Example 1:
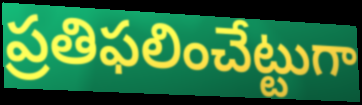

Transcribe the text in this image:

ప్రతిఫలించేట్టుగా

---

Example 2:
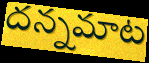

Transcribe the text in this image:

దన్నమాట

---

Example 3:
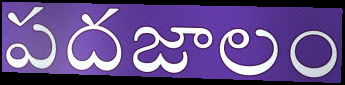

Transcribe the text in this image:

పదజాలం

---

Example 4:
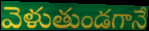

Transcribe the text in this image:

వెళుతుండగానే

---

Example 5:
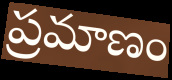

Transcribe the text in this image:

ప్రమాణం